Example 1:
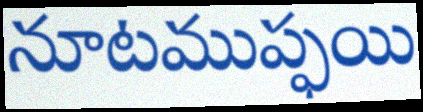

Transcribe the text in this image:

నూటముప్ఫయి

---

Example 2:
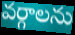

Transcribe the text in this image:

వర్గాలను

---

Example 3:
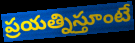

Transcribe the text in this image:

ప్రయత్నిస్తూంటే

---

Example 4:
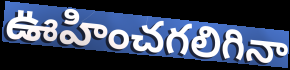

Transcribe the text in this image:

ఊహించగలిగినా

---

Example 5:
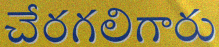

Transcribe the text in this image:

చేరగలిగారు